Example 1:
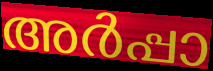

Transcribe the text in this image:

അർപ്പാ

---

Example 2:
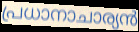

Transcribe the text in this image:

പ്രധാനാചാര്യൻ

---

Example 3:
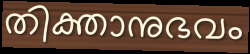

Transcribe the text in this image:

തിക്താനുഭവം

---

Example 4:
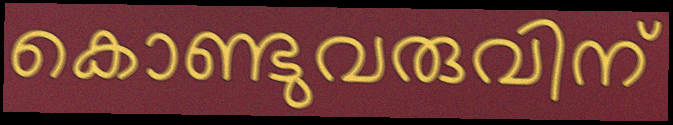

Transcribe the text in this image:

കൊണ്ടുവരുവിന്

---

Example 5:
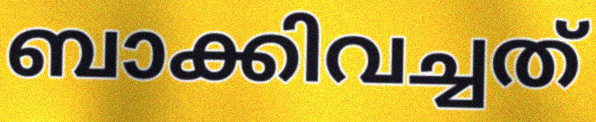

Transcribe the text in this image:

ബാക്കിവച്ചത്